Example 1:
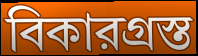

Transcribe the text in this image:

বিকারগ্রস্ত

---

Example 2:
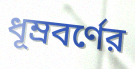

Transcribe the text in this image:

ধূম্রবর্ণের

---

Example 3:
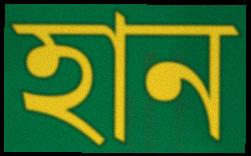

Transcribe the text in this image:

হান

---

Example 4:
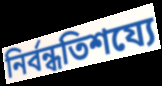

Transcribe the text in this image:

নির্বন্ধতিশয্যে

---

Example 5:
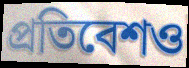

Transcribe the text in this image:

প্রতিবেশও